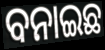
ବନାଇଛ